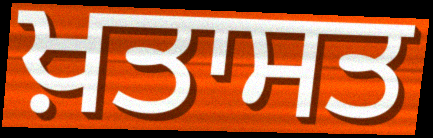
ਖ਼ਤਾਸਤ